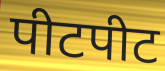
पीटपीट